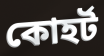
কোহর্ট